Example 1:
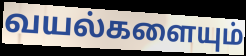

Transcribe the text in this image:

வயல்களையும்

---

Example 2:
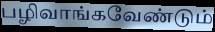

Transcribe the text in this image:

பழிவாங்கவேண்டும்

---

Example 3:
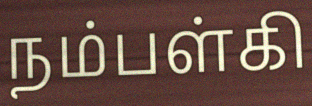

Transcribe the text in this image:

நம்பள்கி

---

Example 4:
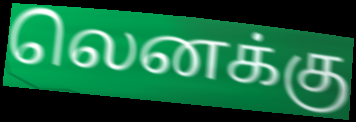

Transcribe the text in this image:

லெனக்கு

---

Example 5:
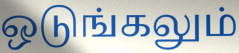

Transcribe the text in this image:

ஒடுங்கலும்